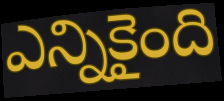
ఎన్నికైంది